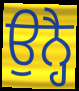
ਉਨ੍ਹੈ